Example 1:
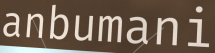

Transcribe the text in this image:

anbumani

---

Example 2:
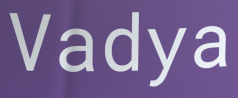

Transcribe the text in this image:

Vadya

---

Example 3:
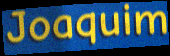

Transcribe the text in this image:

Joaquim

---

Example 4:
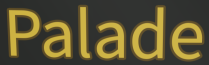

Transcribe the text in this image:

Palade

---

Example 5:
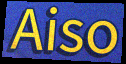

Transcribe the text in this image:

Aiso